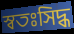
স্বতঃসিদ্ধ